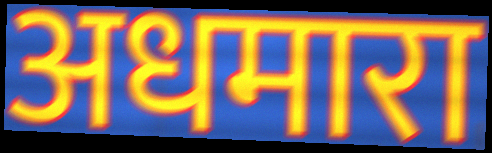
अधमारा